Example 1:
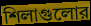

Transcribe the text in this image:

শিলাগুলোর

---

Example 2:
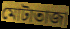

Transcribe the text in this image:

মোটাতাজা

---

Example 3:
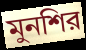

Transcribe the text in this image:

মুনশির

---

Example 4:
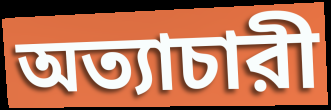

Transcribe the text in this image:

অত্যাচারী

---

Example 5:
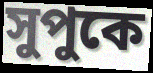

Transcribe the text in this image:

সুপুকে